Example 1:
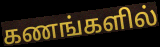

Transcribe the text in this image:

கணங்களில்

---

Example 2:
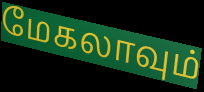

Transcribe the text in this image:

மேகலாவும்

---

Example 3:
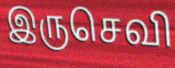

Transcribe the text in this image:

இருசெவி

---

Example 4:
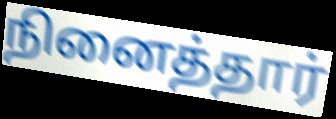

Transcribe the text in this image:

நினைத்தார்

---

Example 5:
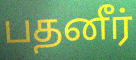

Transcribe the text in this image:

பதனீர்